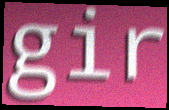
gir